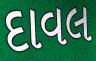
દાવલ